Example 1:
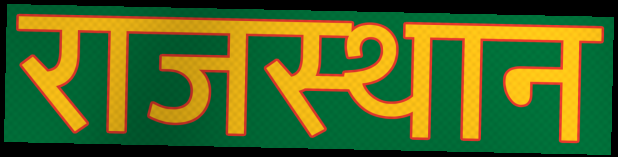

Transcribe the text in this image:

राजस्थान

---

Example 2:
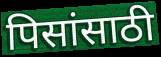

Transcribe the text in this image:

पिसांसाठी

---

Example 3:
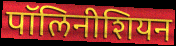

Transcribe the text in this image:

पॉलिनीशियन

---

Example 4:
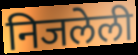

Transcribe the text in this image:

निजलेली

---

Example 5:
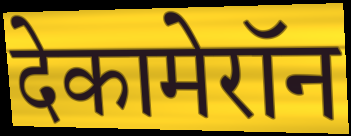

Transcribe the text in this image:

देकामेरॉन